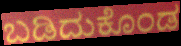
ಬಡಿದುಕೊಂಡ